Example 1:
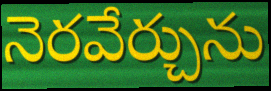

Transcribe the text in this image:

నెరవేర్చును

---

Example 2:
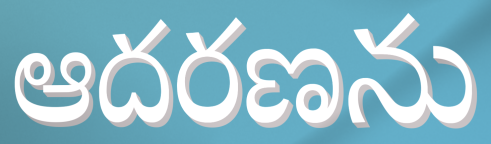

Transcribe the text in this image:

ఆదరణను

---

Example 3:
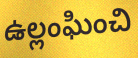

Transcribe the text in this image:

ఉల్లంఘించి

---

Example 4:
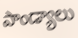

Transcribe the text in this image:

పాండ్యాలు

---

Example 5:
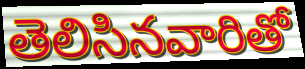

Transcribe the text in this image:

తెలిసినవారితో